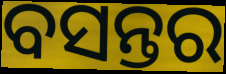
ବସନ୍ତର